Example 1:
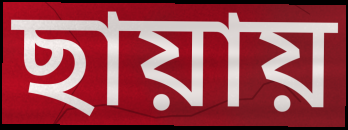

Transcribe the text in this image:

ছায়ায়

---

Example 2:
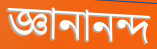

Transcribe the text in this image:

জ্ঞানানন্দ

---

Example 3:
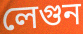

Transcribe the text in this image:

লেগুন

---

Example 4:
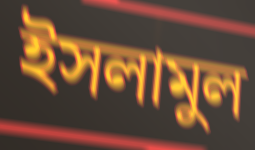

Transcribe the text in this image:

ইসলামুল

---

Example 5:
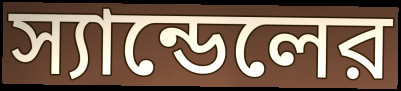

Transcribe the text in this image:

স্যান্ডেলের